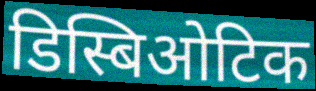
डिस्बिओटिक